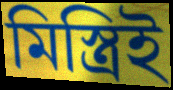
মিস্ত্রিই